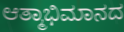
ಆತ್ಮಾಭಿಮಾನದ